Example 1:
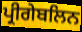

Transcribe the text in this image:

ਪ੍ਰੀਗੇਬਲਿਨ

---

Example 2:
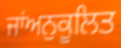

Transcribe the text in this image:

ਜਾਂਅਨੁਕੂਲਿਤ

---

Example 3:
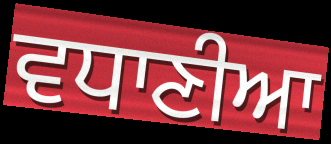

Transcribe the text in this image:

ਵਧਾਣੀਆ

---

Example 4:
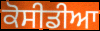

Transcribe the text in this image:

ਕੋਸੀਡੀਆ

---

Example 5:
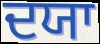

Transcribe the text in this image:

ਦਯਾ